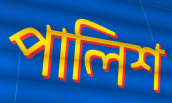
পালিশ